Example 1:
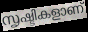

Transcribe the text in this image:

സൃഷ്ടികളാണ്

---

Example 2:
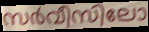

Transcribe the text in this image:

സർവീസിലോ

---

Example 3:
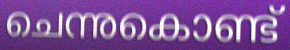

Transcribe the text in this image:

ചെന്നുകൊണ്ട്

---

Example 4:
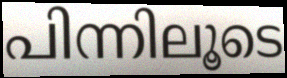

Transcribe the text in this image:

പിന്നിലൂടെ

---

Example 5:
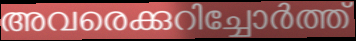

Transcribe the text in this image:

അവരെക്കുറിച്ചോർത്ത്